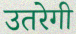
उतरेगी